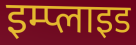
इम्प्लाइड